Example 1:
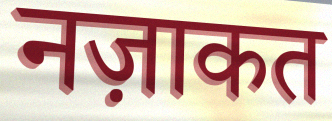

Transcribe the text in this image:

नज़ाकत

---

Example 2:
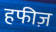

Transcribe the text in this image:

हफीज़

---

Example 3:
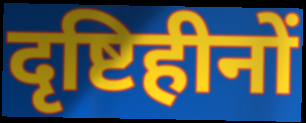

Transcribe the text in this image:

दृष्टिहीनों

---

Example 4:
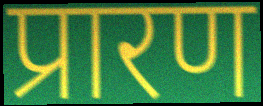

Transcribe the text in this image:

प्रारण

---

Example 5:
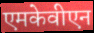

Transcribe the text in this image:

एमकेवीएन